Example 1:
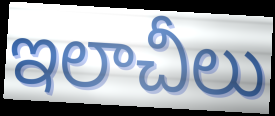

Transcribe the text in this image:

ఇలాచీలు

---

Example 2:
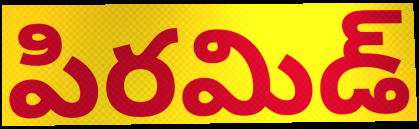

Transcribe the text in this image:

పిరమిడ్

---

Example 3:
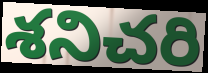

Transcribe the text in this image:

శనిచరి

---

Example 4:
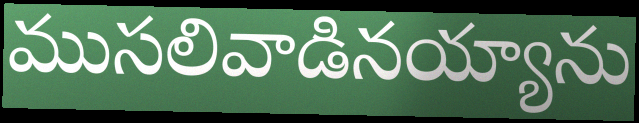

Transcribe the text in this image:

ముసలివాడినయ్యాను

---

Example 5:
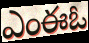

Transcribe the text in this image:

ఎంఈఓ